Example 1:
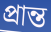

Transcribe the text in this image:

প্ৰান্ত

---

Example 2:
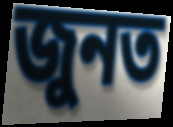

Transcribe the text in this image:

জুনত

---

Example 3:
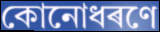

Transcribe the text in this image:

কোনোধৰণে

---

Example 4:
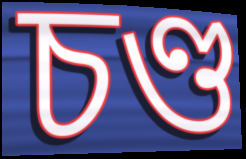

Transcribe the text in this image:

চণ্ড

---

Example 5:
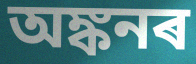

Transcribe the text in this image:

অঙ্কনৰ